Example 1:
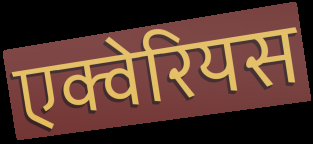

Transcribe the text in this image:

एक्वेरियस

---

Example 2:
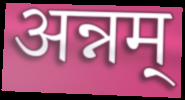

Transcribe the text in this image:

अन्नम्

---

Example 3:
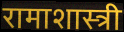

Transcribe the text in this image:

रामाशास्त्री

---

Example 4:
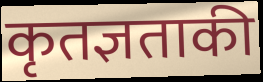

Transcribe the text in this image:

कृतज्ञताकी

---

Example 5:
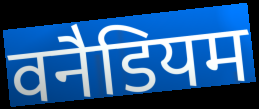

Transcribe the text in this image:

वनैडियम